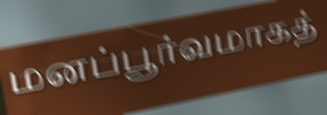
மனப்பூர்வமாகத்